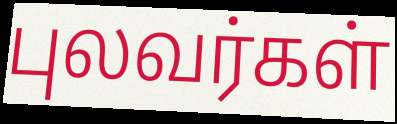
புலவர்கள்